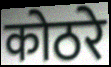
कोठरे